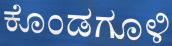
ಕೊಂಡಗೂಳಿ